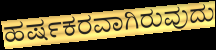
ಹರ್ಷಕರವಾಗಿರುವುದು